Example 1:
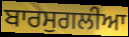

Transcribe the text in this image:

ਬਾਰਸੁਗਲੀਆ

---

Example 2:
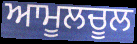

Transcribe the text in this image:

ਆਮੂਲਚੂਲ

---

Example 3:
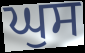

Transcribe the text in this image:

ਘੁਸ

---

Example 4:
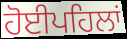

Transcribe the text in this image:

ਹੋਈਪਹਿਲਾਂ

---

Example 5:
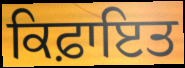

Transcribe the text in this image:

ਕਿਫ਼ਾਇਤ